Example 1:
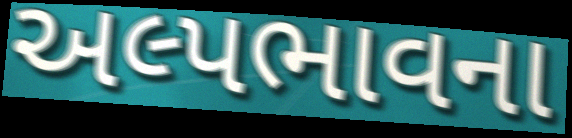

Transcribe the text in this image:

અલ્પભાવના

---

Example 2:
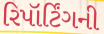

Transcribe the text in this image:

રિપૉર્ટિંગની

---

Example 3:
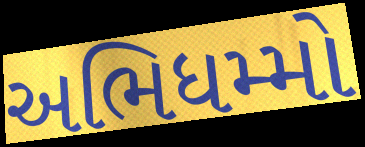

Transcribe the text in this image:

અભિધમ્મો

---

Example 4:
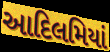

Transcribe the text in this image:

આદિલમિયાં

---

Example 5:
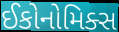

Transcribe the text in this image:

ઈકોનોમિક્સ